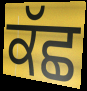
ਕੱਛ